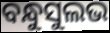
ବନ୍ଧୁସୁଲଭ